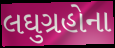
લઘુગ્રહોના